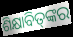
ଶିକ୍ଷାବିତ୍‌ଙ୍କର